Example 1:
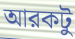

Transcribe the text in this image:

আরকটু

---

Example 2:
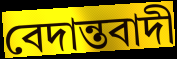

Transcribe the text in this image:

বেদান্তবাদী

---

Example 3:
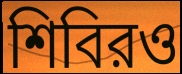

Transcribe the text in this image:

শিবিরও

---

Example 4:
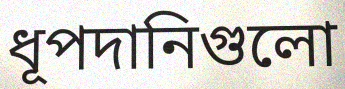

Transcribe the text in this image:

ধূপদানিগুলো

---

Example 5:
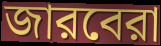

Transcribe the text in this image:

জারবেরা